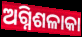
ଅଗ୍ନିଶଳାକା